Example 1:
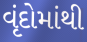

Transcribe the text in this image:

વૃંદોમાંથી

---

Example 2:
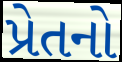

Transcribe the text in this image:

પ્રેતનો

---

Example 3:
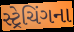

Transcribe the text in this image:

સ્ટ્રેચિંગના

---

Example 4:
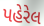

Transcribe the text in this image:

પહેરેલ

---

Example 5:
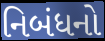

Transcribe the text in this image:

નિબંધનો